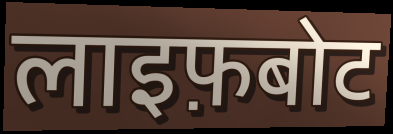
लाइफ़बोट